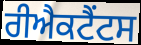
ਰੀਐਕਟੈਂਟਸ